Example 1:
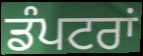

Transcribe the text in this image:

ਡੰਪਟਰਾਂ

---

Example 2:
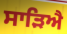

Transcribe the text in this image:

ਸਾੜਿਐ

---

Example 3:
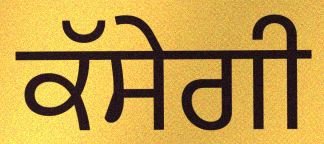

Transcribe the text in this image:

ਕੱਸੇਗੀ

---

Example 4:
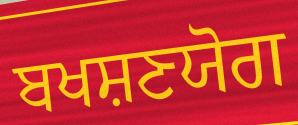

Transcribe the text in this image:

ਬਖਸ਼ਣਯੋਗ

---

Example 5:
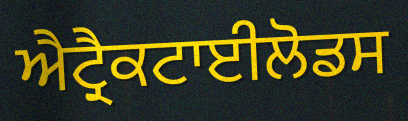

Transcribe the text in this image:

ਐਟ੍ਰੈਕਟਾਈਲੋਡਸ